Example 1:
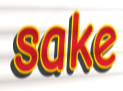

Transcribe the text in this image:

sake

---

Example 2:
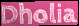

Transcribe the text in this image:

Dholia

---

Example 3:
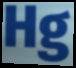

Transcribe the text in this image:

Hg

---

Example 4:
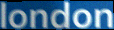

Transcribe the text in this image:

london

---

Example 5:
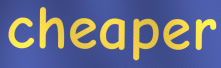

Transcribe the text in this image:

cheaper